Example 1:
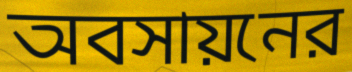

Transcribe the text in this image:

অবসায়নের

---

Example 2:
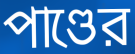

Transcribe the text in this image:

পাণ্ডের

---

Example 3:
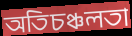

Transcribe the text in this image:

অতিচঞ্চলতা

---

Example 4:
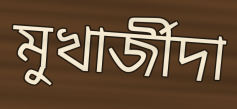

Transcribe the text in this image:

মুখার্জীদা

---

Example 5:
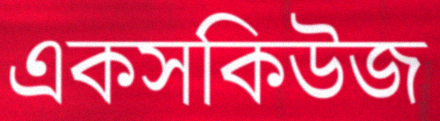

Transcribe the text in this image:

একসকিউজ